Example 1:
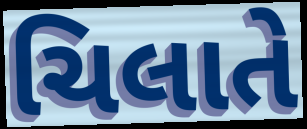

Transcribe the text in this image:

ચિલાતે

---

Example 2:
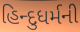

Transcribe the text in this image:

હિન્દુધર્મની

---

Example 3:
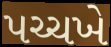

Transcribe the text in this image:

પચ્ચખે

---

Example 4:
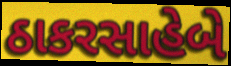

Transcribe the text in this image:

ઠાકરસાહેબે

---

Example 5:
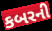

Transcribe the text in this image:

કબરની